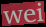
wei